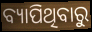
ବ୍ୟାପିଥିବାରୁ